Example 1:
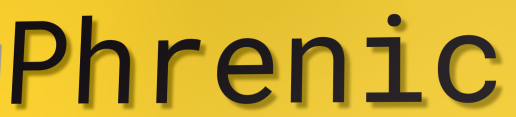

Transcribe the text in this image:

Phrenic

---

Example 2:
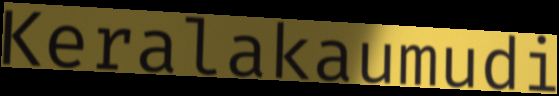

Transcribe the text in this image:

Keralakaumudi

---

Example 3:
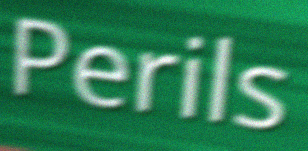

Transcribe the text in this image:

Perils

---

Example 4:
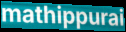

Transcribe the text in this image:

mathippurai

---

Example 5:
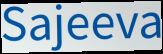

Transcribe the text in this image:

Sajeeva